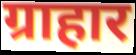
ग्राहार